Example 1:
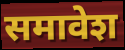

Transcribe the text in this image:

समावेश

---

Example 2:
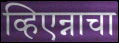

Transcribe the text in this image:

व्हिएन्नाचा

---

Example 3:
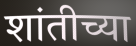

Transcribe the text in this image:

शांतीच्या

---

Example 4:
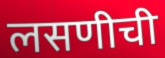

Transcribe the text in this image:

लसणीची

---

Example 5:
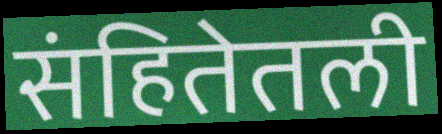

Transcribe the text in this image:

संहितेतली